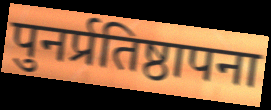
पुनर्प्रतिष्ठापना